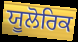
ਯੂਲੋਰਿਕ